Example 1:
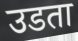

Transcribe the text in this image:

उडता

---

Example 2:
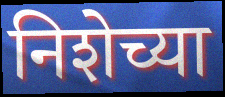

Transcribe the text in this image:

निशेच्या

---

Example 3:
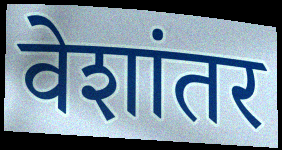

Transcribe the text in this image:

वेशांतर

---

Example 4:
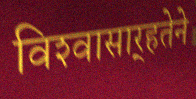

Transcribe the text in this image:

विश्वासार्हतेने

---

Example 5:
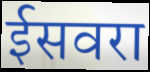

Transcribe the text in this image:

ईसवरा